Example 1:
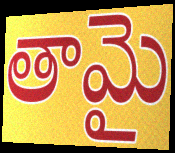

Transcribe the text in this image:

తామై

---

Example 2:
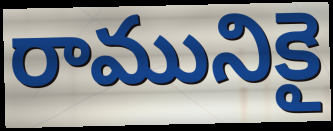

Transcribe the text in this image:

రామునికై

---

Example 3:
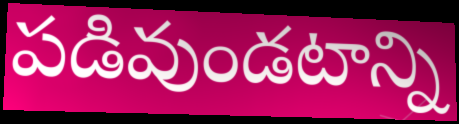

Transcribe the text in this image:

పడివుండటాన్ని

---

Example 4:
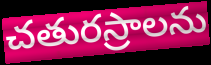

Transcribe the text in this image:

చతురస్రాలను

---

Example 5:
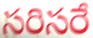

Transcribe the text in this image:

సరిసరే